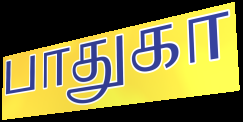
பாதுகா